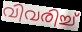
വിവരിച്ച്